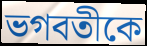
ভগবতীকে